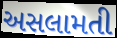
અસલામતી